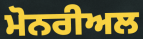
ਮੋਨਰੀਅਲ